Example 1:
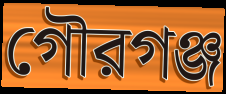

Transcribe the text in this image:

গৌরগঞ্জ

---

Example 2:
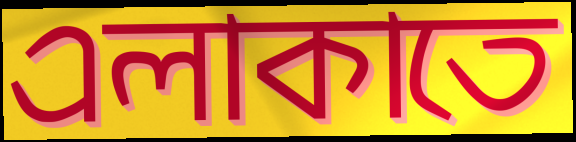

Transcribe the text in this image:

এলাকাতে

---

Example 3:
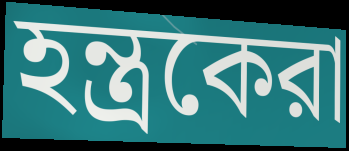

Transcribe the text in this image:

হন্ত্রকেরা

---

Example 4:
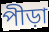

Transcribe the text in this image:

পীড়া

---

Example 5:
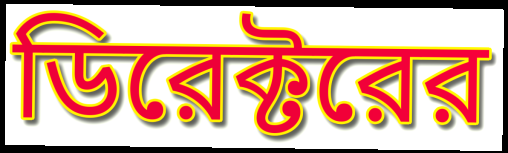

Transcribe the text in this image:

ডিরেক্টরের